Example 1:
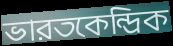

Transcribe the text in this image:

ভারতকেন্দ্রিক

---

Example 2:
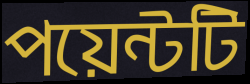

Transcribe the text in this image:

পয়েন্টটি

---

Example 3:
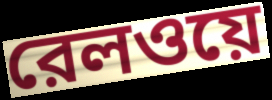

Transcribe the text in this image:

রেলওয়ে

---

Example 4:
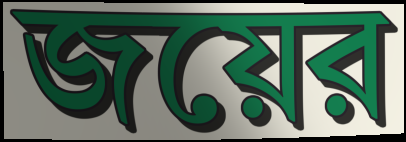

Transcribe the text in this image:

জয়ের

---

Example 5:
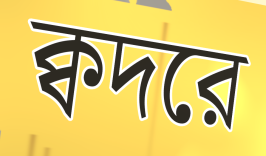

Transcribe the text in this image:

ক্বদরে